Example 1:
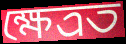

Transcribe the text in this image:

ক্ষেত্ৰত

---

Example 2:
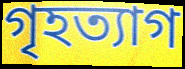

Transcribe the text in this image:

গৃহত্যাগ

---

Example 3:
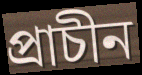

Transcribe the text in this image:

প্ৰাচীন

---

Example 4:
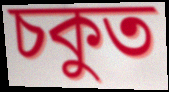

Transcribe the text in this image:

চকুত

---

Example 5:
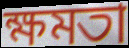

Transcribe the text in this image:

ক্ষমতা